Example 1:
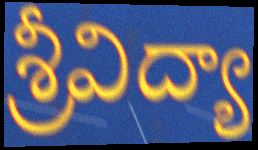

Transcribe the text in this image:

శ్రీవిద్యా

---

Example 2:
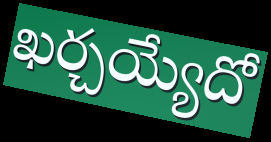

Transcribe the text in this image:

ఖర్చయ్యేదో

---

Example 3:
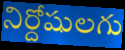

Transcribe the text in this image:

నిర్దోషులగు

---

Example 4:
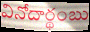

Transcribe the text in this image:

వినోదార్థంబు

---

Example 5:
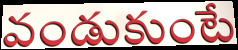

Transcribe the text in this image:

వండుకుంటే